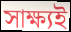
সাক্ষ্যই